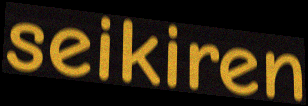
seikiren